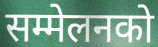
सम्मेलनको